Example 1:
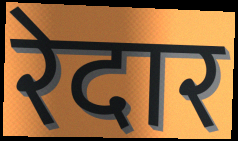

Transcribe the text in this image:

रेदार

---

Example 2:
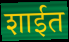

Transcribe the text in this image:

शाईत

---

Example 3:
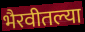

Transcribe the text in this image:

भैरवीतल्या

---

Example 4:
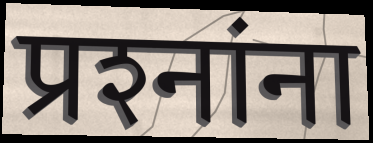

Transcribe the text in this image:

प्रश्नांना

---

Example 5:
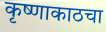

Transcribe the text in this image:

कृष्णाकाठचा